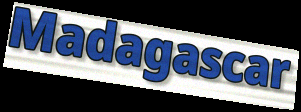
Madagascar